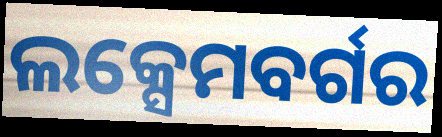
ଲକ୍ସେମବର୍ଗର